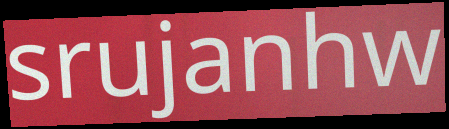
srujanhw